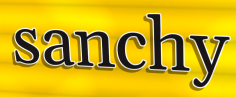
sanchy